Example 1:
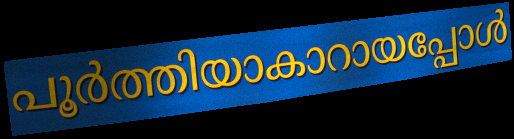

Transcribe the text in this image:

പൂർത്തിയാകാറായപ്പോൾ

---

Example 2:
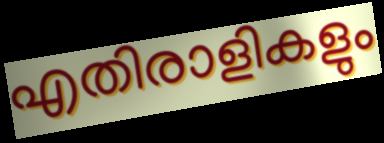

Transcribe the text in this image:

എതിരാളികളും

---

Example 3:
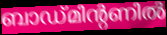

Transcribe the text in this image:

ബാഡ്മിന്റണിൽ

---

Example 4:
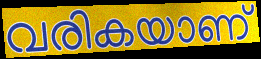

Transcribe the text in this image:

വരികയാണ്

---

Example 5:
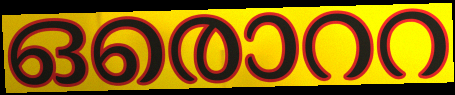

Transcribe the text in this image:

ഒരൊററ